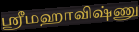
ஸ்ரீமஹாவிஷ்ணு